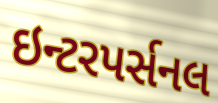
ઇન્ટરપર્સનલ